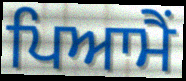
ਪਿਆਮੈਂ